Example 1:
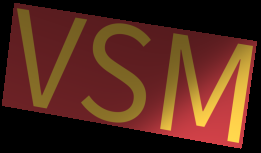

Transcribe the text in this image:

VSM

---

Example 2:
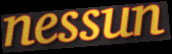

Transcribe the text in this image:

nessun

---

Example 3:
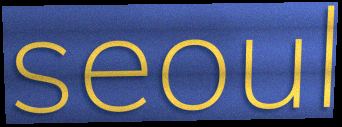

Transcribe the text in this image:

seoul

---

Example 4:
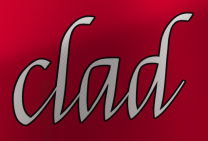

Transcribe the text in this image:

clad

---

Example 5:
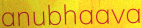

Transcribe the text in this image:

anubhaava